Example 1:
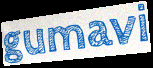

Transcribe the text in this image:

gumavi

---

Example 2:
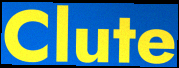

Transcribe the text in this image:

Clute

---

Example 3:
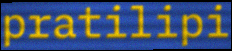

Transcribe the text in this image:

pratilipi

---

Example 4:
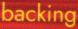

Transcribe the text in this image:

backing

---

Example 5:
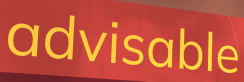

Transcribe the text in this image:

advisable